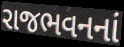
રાજભવનનાં